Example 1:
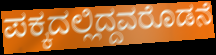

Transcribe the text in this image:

ಪಕ್ಕದಲ್ಲಿದ್ದವರೊಡನೆ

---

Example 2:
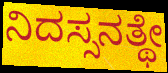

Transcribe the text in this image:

ನಿದಸ್ಸನತ್ಥೇ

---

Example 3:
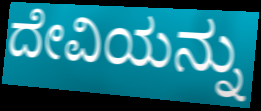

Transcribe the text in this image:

ದೇವಿಯನ್ನು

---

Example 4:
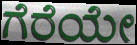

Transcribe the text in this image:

ಗೆರೆಯೇ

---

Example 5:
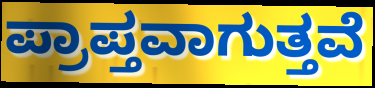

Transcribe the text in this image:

ಪ್ರಾಪ್ತವಾಗುತ್ತವೆ